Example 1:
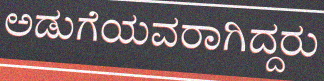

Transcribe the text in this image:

ಅಡುಗೆಯವರಾಗಿದ್ದರು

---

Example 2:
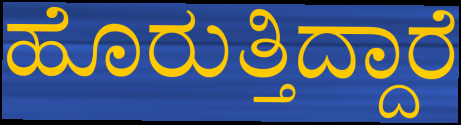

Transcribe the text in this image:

ಹೊರುತ್ತಿದ್ದಾರೆ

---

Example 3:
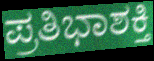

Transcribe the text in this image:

ಪ್ರತಿಭಾಶಕ್ತಿ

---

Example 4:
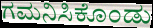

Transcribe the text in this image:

ಗಮನಿಸಿಕೊಂಡು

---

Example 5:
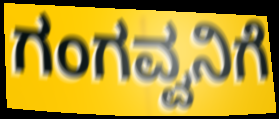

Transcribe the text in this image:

ಗಂಗವ್ವನಿಗೆ